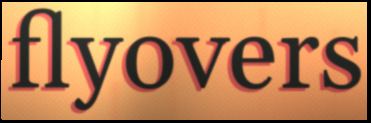
flyovers